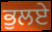
ਭੁਲਏ